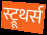
स्ट्रूथर्स